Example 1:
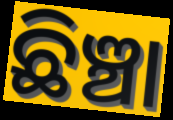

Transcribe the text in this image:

ଛିଞ୍ଚା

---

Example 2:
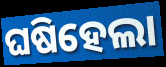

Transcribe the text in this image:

ଘଷିହେଲା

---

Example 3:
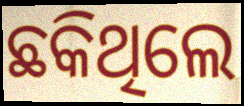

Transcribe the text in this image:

ଛକିଥିଲେ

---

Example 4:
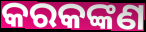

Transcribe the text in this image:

କରକଙ୍କଣ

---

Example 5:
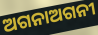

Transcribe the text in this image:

ଅଗନାଅଗନୀ